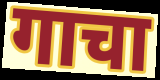
गाचा